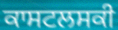
ਕਾਸਟਲਸਕੀ